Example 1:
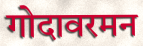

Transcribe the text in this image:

गोदावरमन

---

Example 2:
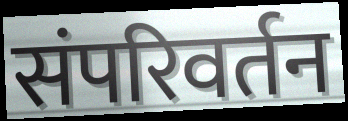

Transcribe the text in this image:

संपरिवर्तन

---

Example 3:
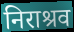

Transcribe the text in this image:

निराश्रव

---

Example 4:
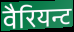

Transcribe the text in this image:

वैरियन्ट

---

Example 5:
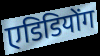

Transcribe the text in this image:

एडिडियोंग